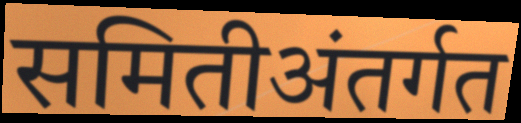
समितीअंतर्गत